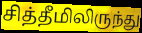
சித்தீமிலிருந்து